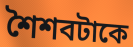
শৈশবটাকে